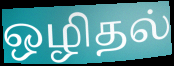
ஒழிதல்